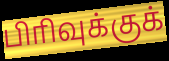
பிரிவுக்குக்